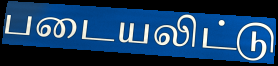
படையலிட்டு